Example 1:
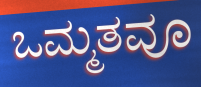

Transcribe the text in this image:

ಒಮ್ಮತವೂ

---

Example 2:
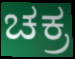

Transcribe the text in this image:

ಚಕ್ರ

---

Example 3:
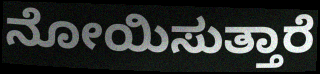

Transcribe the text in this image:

ನೋಯಿಸುತ್ತಾರೆ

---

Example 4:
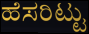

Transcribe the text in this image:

ಹೆಸರಿಟ್ಟು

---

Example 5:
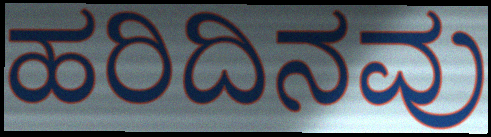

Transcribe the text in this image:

ಹರಿದಿನವು